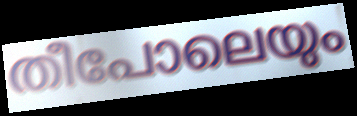
തീപോലെയും